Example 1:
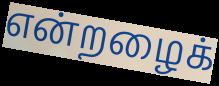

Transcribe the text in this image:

என்றழைக்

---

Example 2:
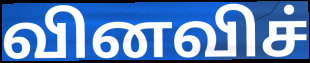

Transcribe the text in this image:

வினவிச்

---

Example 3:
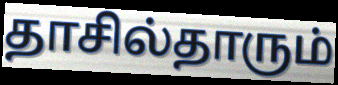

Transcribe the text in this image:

தாசில்தாரும்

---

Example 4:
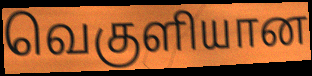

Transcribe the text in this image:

வெகுளியான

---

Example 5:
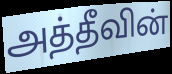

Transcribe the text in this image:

அத்தீவின்